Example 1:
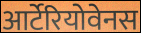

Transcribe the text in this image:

आर्टेरियोवेनस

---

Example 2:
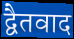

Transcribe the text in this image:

द्वैतवाद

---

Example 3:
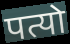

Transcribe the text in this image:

पत्यो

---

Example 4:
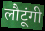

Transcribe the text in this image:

लौटूंगी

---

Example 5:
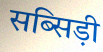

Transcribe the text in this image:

सब्सिड़ी